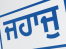
ਜਹਾਜੁ